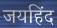
जयहिंद